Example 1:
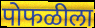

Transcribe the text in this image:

पोफळीला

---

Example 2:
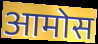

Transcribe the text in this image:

आमोस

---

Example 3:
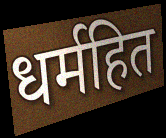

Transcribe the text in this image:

धर्महित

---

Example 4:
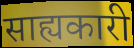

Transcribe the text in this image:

साह्यकारी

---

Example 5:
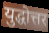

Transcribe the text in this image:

युद्धोत्तर